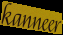
kanneer